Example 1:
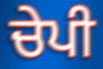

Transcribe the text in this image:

ਚੇਪੀ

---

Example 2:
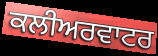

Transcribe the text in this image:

ਕਲੀਅਰਵਾਟਰ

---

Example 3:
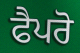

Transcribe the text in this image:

ਫੈਪਰੋ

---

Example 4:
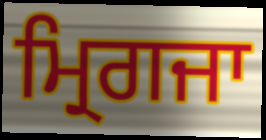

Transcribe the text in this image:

ਮ੍ਰਿਗਜਾ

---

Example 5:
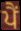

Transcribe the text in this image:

ਪੈਂ